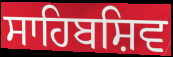
ਸਾਹਿਬਸ਼ਿਵ